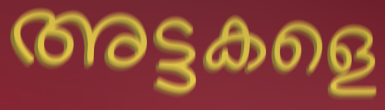
അട്ടകളെ